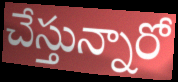
చేస్తున్నారో